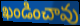
ఖండించావు